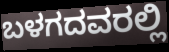
ಬಳಗದವರಲ್ಲಿ